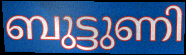
ബുട്ടുണി